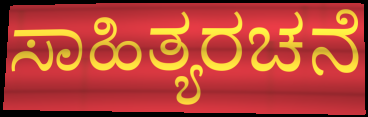
ಸಾಹಿತ್ಯರಚನೆ